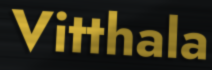
Vitthala